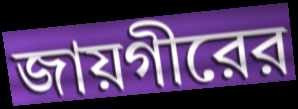
জায়গীরের